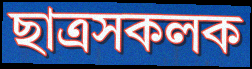
ছাত্ৰসকলক